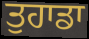
ਤੁਹਾਡਾ